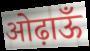
ओढ़ाऊँ